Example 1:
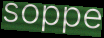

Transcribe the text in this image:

soppe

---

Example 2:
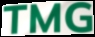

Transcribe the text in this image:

TMG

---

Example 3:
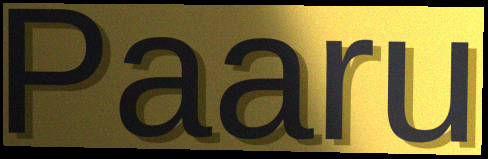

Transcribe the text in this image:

Paaru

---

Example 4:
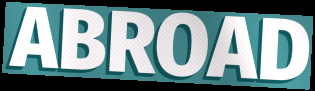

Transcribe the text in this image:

ABROAD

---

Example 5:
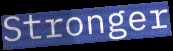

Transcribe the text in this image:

Stronger